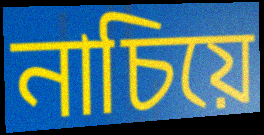
নাচিয়ে